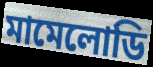
মামেলোডি